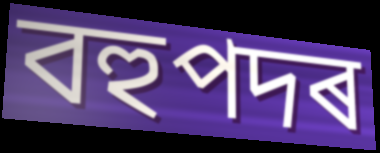
বহুপদৰ